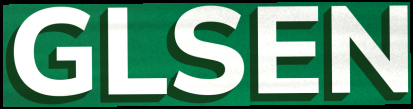
GLSEN